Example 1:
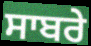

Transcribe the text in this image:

ਸਾਬਰੇ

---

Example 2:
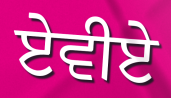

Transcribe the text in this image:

ਏਵੀਏ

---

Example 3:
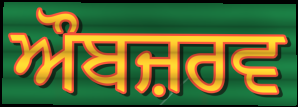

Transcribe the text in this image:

ਔਬਜ਼ਰਵ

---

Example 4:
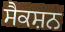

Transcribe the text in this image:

ਸੈਕਸ਼ਨ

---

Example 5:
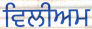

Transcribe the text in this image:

ਵਿਲੀਅਮ